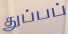
துப்பப்